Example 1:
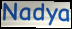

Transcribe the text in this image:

Nadya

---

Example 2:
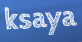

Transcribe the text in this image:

ksaya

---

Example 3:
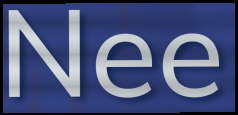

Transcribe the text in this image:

Nee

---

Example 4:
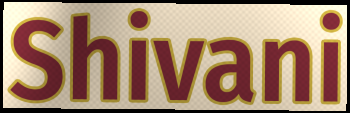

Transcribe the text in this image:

Shivani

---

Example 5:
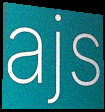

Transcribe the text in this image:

ajs